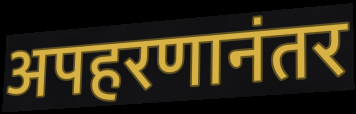
अपहरणानंतर